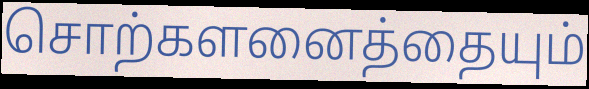
சொற்களனைத்தையும்